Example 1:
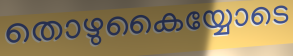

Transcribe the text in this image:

തൊഴുകൈയ്യോടെ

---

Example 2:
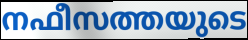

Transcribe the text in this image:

നഫീസത്തയുടെ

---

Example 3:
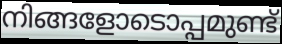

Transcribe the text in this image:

നിങ്ങളോടൊപ്പമുണ്ട്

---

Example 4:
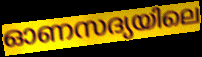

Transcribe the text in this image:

ഓണസദ്യയിലെ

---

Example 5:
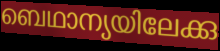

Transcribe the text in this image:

ബെഥാന്യയിലേക്കു